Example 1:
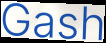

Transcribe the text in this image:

Gash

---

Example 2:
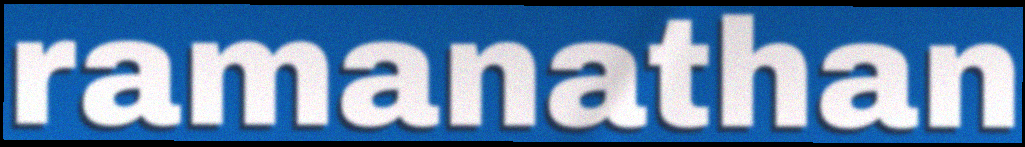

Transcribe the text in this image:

ramanathan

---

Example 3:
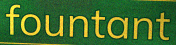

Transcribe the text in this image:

fountant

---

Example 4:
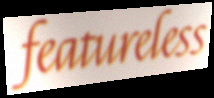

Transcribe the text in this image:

featureless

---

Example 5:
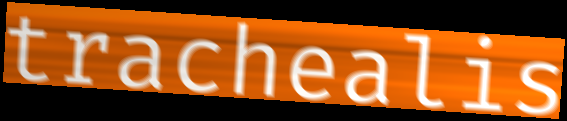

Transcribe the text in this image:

trachealis